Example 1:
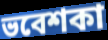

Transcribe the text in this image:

ভবেশকা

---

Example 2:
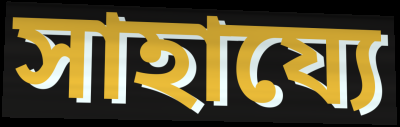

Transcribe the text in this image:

সাহায্যে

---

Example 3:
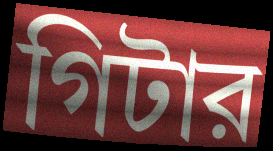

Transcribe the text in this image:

গিটার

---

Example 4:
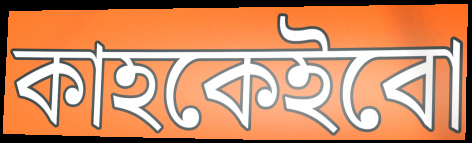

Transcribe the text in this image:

কাহকেইবো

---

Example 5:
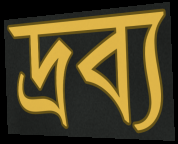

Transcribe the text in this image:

দ্রব্য